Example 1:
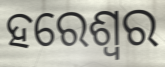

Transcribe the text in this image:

ହରେଶ୍ୱର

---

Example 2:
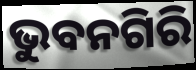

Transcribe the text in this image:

ଭୁବନଗିରି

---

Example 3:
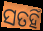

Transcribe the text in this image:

ସତହିଁ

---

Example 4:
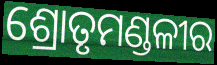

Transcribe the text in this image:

ଶ୍ରୋତୃମଣ୍ଡଳୀର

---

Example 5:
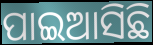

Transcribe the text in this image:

ପାଇଆସିଛି